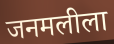
जनमलीला